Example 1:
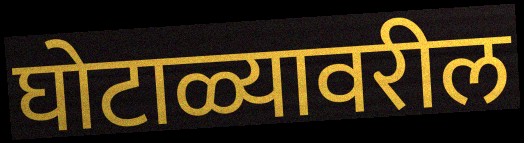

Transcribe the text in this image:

घोटाळ्यावरील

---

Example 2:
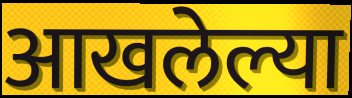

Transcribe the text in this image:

आखलेल्या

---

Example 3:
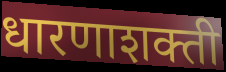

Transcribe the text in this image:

धारणाशक्ती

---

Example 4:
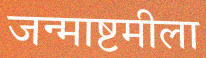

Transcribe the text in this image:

जन्माष्टमीला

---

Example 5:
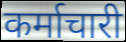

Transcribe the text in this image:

कर्माचारी